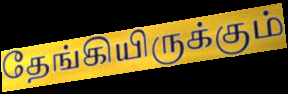
தேங்கியிருக்கும்